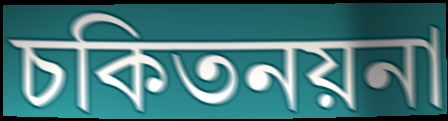
চকিতনয়না